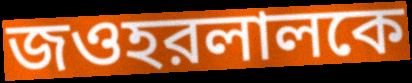
জওহরলালকে